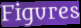
Figures